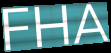
FHA